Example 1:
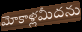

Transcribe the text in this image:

మోకాళ్లమీదను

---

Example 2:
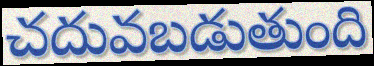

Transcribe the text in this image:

చదువబడుతుంది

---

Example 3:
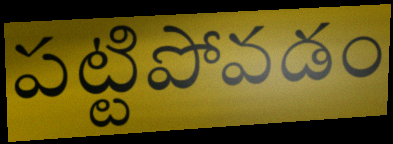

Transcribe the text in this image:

పట్టిపోవడం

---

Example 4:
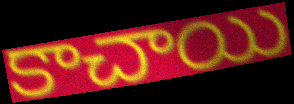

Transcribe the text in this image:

కాచాయి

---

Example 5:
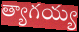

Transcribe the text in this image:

త్యాగయ్య